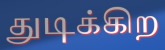
துடிக்கிற